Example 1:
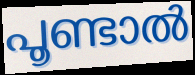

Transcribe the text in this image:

പൂണ്ടാൽ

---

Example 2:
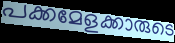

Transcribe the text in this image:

പക്കമേളക്കാരുടെ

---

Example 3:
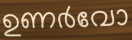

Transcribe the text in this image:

ഉണർവോ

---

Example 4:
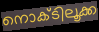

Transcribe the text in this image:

നൊക്ടിലൂക്ക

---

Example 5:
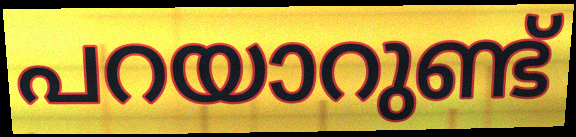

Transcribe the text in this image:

പറയാറുണ്ട്